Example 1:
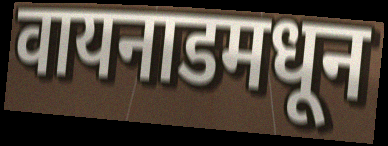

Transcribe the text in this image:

वायनाडमधून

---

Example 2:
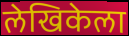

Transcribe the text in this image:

लेखिकेला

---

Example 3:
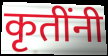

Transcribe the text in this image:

कृतींनी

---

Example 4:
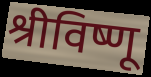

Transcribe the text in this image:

श्रीविष्णू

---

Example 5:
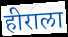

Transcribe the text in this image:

हीराला